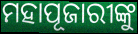
ମହାପୂଜାରୀଙ୍କୁ